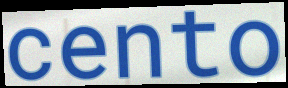
cento